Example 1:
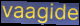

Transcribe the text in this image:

vaagide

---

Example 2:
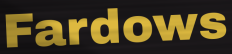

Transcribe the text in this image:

Fardows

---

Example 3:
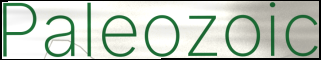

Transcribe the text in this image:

Paleozoic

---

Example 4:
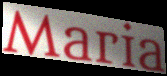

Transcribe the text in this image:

Maria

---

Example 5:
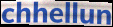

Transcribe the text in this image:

chhellun